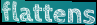
flattens